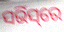
ସର୍ଭିସ୍‌ରେ